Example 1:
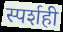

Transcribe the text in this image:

स्पर्शही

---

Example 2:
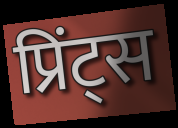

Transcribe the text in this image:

प्रिंट्स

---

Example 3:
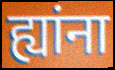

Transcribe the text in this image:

ह्यांना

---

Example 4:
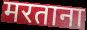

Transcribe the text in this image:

मरताना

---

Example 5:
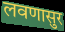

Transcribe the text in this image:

लवणासुर